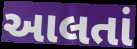
આલતાં